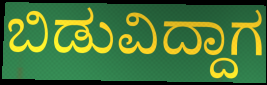
ಬಿಡುವಿದ್ದಾಗ